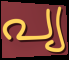
പ്യ